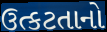
ઉત્કટતાનો